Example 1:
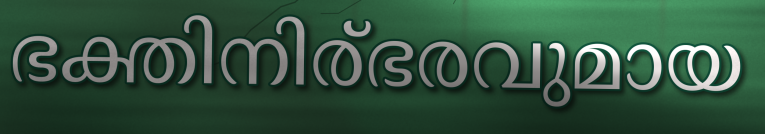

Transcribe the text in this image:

ഭക്തിനിര്ഭരവുമായ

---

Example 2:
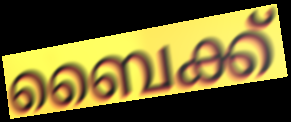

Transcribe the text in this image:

ബൈക്ക്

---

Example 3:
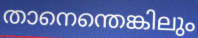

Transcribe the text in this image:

താനെന്തെങ്കിലും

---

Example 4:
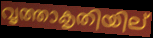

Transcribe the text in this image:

വൃത്താകൃതിയില്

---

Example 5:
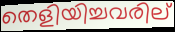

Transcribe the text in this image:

തെളിയിച്ചവരില്